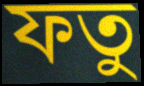
ফতু